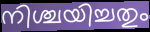
നിശ്ചയിച്ചതും